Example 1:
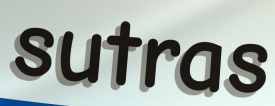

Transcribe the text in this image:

sutras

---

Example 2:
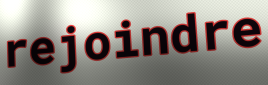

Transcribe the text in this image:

rejoindre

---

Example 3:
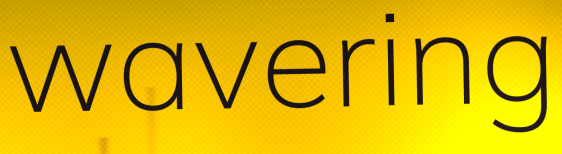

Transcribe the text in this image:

wavering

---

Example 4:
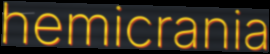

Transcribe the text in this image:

hemicrania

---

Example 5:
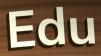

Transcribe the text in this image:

Edu